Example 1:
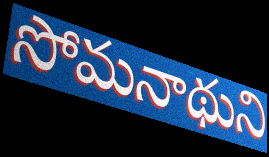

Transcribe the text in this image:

సోమనాథుని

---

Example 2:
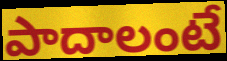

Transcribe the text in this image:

పాదాలంటే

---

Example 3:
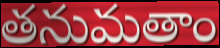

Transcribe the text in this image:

తనుమతాం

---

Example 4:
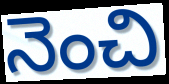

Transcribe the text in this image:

నెంచి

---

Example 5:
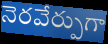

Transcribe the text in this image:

నెరవేర్పుగా